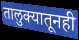
तालुक्यातूनही